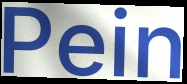
Pein